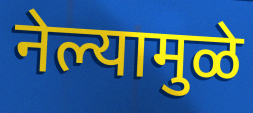
नेल्यामुळे